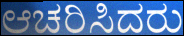
ಆಚರಿಸಿದರು